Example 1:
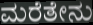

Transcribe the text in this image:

ಮರೆತೇನು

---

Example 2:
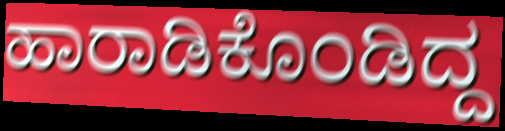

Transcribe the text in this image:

ಹಾರಾಡಿಕೊಂಡಿದ್ದ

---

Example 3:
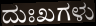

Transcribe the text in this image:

ದುಃಖಗಳು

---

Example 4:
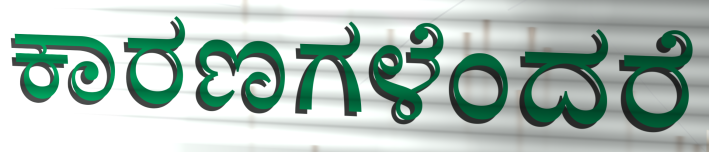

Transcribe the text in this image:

ಕಾರಣಗಳೆಂದರೆ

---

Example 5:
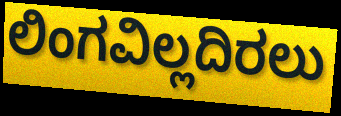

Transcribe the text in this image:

ಲಿಂಗವಿಲ್ಲದಿರಲು